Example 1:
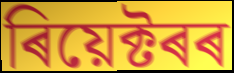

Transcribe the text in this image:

ৰিয়েক্টৰৰ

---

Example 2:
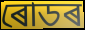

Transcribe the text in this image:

ৰোডৰ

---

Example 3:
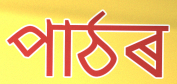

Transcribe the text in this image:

পাঠৰ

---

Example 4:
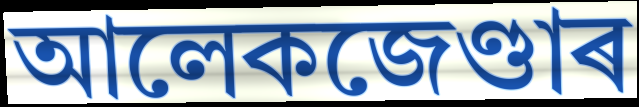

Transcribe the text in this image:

আলেকজেণ্ডাৰ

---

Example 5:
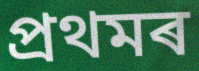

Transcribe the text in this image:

প্ৰথমৰ